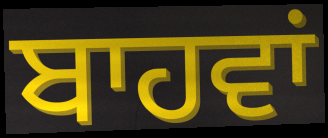
ਬਾਹਵਾਂ